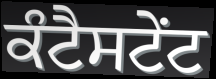
ਕੰਟੈਸਟੇਂਟ